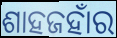
ଶାହଜହାଁର